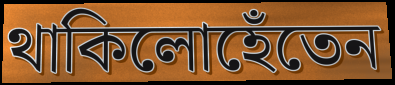
থাকিলোহেঁতেন